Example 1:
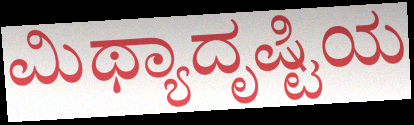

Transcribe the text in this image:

ಮಿಥ್ಯಾದೃಷ್ಟಿಯ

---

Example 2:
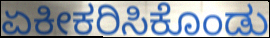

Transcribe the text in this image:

ಏಕೀಕರಿಸಿಕೊಂಡು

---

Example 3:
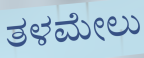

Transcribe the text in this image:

ತಳಮೇಲು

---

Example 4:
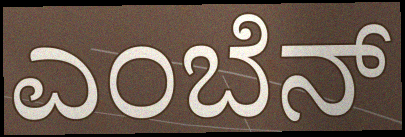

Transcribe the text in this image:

ಎಂಬೆನ್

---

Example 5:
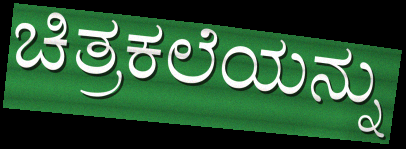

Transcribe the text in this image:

ಚಿತ್ರಕಲೆಯನ್ನು